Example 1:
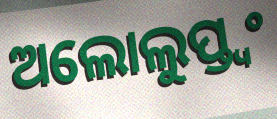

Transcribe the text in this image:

ଅଲୋଲୁପ୍ତ୍ୱଂ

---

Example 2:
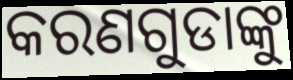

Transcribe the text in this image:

କରଣଗୁଡାଙ୍କୁ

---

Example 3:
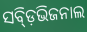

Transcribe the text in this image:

ସବ୍ଡ଼ିଭିଜନାଲ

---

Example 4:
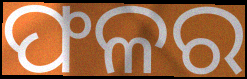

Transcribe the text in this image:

ଫଳର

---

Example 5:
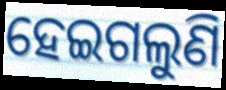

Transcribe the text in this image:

ହେଇଗଲୁଣି